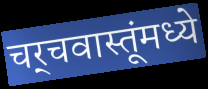
चर्चवास्तूंमध्ये